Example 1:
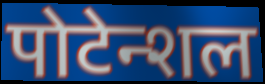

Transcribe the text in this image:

पोटेन्शल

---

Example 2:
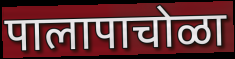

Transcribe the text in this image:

पालापाचोळा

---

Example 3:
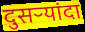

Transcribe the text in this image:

दुसऱ्यांदा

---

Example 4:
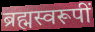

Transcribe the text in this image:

ब्रह्मस्वरूपीं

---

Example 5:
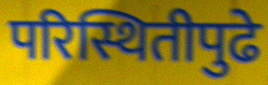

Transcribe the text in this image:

परिस्थितीपुढे